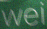
wei